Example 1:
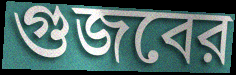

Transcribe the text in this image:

গুজবের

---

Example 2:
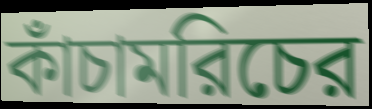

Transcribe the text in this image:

কাঁচামরিচের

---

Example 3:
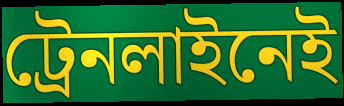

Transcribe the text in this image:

ট্রেনলাইনেই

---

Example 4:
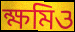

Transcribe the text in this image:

ক্ষমিও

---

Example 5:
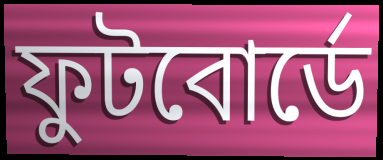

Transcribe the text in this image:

ফুটবোর্ডে